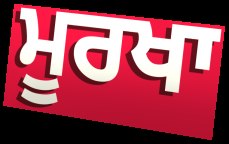
ਮੂਰਖਾ